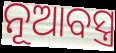
ନୂଆବସ୍ତ୍ର